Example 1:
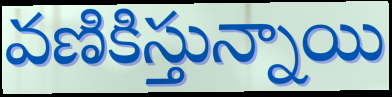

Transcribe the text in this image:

వణికిస్తున్నాయి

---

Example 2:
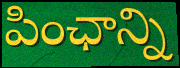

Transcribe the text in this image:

పింఛాన్ని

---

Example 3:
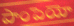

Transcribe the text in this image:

పాంపెయో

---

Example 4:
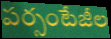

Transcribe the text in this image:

పర్సంటేజీల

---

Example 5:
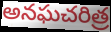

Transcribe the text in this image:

అనఘచరిత్ర